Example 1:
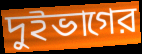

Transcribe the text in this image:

দুইভাগের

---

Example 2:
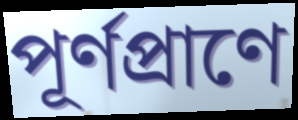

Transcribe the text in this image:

পূর্ণপ্রাণে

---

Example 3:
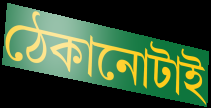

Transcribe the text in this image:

ঠেকানোটাই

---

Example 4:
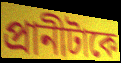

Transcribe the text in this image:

প্রানীটাকে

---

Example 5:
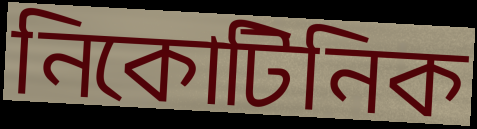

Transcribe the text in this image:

নিকোটিনিক